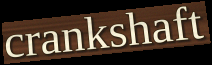
crankshaft